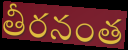
తీరనంత